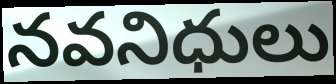
నవనిధులు